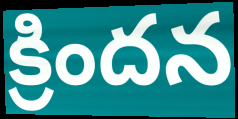
క్రిందన